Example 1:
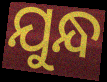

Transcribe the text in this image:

ଯୁନ୍ଧ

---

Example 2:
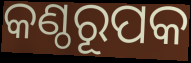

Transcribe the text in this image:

କଣ୍ଠରୂପକ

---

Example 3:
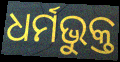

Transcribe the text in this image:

ଧର୍ମଭୁକ୍ତ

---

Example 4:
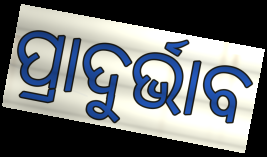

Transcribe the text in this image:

ପ୍ରାଦୁର୍ଭାବ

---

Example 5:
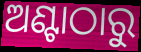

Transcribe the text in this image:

ଅଣ୍ଟାଠାରୁ